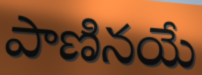
పాణినయే